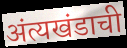
अंत्यखंडाची